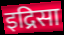
इद्रिसा